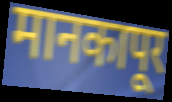
मानकापूर